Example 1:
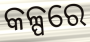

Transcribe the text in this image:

କଳ୍ପରେ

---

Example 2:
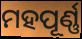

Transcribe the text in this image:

ମହପୂର୍ଣ୍ଣ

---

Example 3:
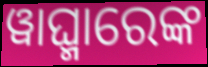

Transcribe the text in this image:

ୱାଘ୍ମାରେଙ୍କ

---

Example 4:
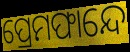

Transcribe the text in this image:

ପ୍ରେମଫାନ୍ଦେ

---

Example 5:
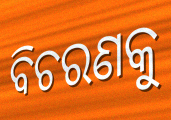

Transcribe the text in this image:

ବିଚରଣକୁ